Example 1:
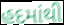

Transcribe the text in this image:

હદમાંથી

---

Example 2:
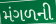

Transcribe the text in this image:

મંગળની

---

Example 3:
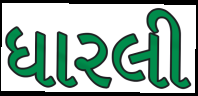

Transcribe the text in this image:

ધારલી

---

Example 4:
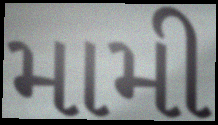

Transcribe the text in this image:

મામી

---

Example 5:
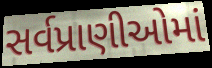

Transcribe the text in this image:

સર્વપ્રાણીઓમાં